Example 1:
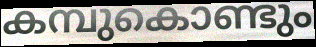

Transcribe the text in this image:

കമ്പുകൊണ്ടും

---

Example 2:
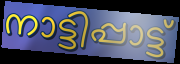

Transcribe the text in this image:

നാട്ടിപ്പാട്ട്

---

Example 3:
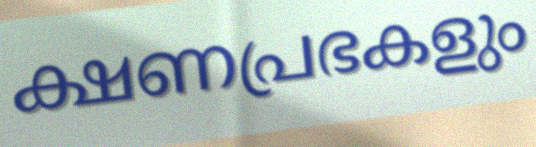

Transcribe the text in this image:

ക്ഷണപ്രഭകളും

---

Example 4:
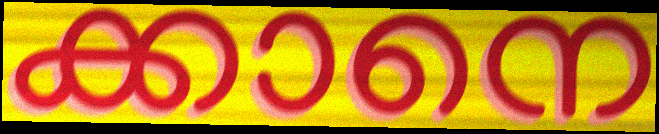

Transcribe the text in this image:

ക്കാനെ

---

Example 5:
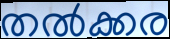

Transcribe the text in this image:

തൽക്കര